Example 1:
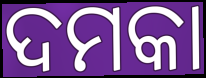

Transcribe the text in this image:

ଦମକା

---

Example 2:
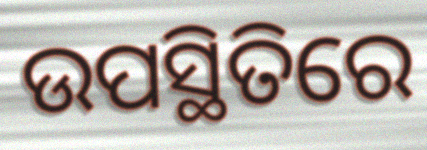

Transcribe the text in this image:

ଉପସ୍ଥିତିରେ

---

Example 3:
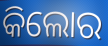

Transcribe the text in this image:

କିଲୋର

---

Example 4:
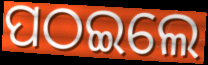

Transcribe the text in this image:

ପଠଇଲେ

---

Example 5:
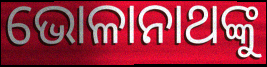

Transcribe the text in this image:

ଭୋଳାନାଥଙ୍କୁ